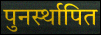
पुनर्स्‍थापित